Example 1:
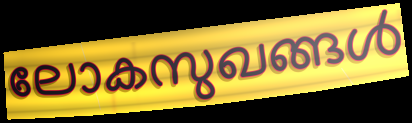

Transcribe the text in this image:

ലോകസുഖങ്ങൾ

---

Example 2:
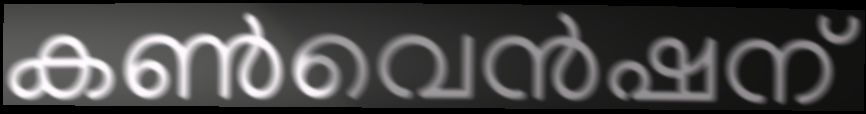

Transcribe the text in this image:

കൺവെൻഷന്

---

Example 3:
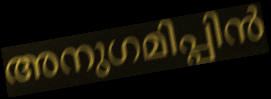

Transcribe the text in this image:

അനുഗമിപ്പിൻ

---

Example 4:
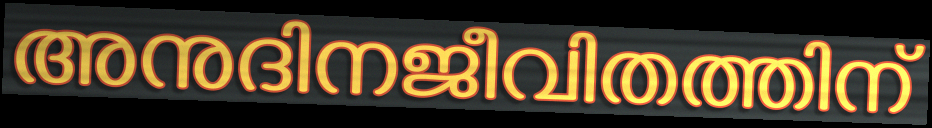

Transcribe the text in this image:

അനുദിനജീവിതത്തിന്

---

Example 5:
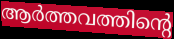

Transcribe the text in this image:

ആർത്തവത്തിന്റെ